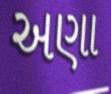
અણા